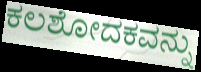
ಕಲಶೋದಕವನ್ನು